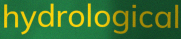
hydrological